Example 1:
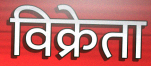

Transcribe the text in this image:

विक्रेता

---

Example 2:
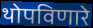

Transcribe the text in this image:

थोपविणारे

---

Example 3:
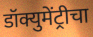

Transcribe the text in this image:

डॉक्युमेंट्रीचा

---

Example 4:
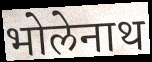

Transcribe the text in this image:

भोलेनाथ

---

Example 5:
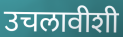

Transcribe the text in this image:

उचलावीशी